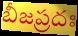
బీజప్రదః